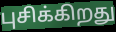
புசிக்கிறது